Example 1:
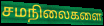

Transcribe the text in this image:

சமநிலைகளை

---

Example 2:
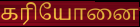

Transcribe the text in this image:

கரியோனை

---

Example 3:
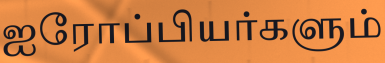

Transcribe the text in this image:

ஐரோப்பியர்களும்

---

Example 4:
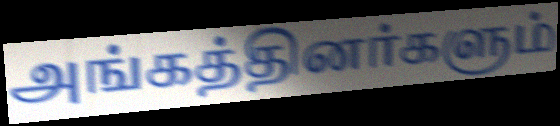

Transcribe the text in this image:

அங்கத்தினர்களும்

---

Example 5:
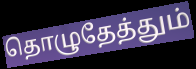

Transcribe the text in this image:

தொழுதேத்தும்